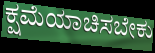
ಕ್ಷಮೆಯಾಚಿಸಬೇಕು